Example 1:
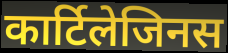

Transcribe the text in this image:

कार्टिलेजिनस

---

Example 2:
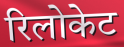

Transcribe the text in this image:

रिलोकेट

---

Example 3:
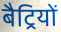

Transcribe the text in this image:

बैट्रियों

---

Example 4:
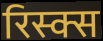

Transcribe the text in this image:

रिस्क्स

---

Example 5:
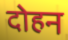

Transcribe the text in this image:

दोहन